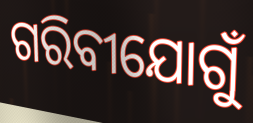
ଗରିବୀଯୋଗୁଁ